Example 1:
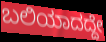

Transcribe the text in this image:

ಬಲಿಯಾದದ್ದೇ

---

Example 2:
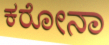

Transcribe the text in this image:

ಕರೋನಾ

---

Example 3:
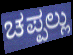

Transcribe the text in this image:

ಚಪ್ಪಲ್ಲು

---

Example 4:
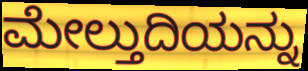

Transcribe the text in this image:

ಮೇಲ್ತುದಿಯನ್ನು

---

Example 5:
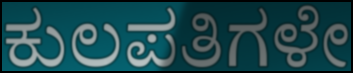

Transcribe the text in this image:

ಕುಲಪತಿಗಳೇ